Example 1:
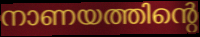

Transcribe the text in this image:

നാണയത്തിന്റെ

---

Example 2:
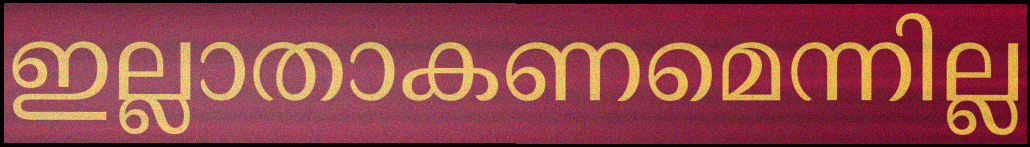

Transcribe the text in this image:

ഇല്ലാതാകണമെന്നില്ല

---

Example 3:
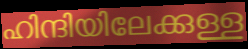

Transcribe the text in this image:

ഹിന്ദിയിലേക്കുള്ള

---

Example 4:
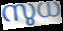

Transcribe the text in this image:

സുധ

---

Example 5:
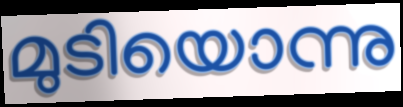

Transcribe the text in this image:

മുടിയൊന്നു